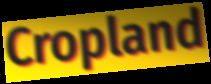
Cropland